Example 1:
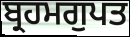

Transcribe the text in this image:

ਬ੍ਰਹਮਗੁਪਤ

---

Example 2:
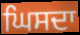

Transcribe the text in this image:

ਘਿਸਦਾ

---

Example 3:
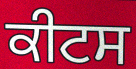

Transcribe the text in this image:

ਕੀਟਸ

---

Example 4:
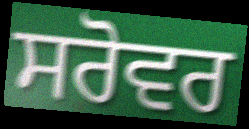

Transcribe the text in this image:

ਸਰੋਵਰ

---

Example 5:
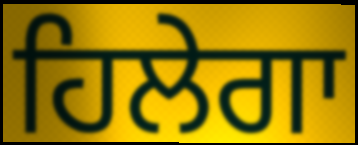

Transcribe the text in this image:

ਹਿਲੇਗਾ